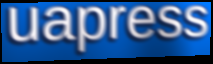
uapress